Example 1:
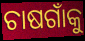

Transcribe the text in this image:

ଚାଷଗାଁକୁ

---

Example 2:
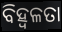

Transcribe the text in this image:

ବିହ୍ଵଳତା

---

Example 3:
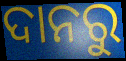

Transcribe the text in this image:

ଦାନରୁ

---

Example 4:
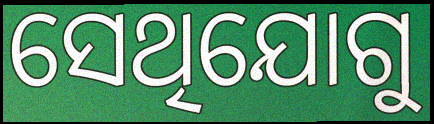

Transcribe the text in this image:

ସେଥିଯୋଗୁ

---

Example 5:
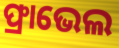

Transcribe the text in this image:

ଫ୍ରାଭେଲ